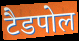
टैडपोल